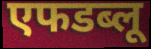
एफडब्लू